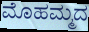
ಮೊಹಮ್ಮದ